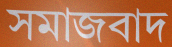
সমাজবাদ